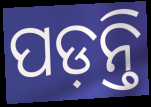
ପଡ଼ନ୍ତି